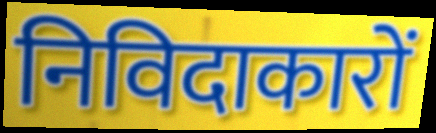
निविदाकारों